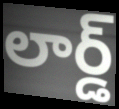
లార్డ్